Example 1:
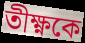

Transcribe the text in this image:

তীক্ষ্ণকে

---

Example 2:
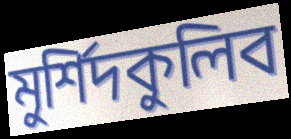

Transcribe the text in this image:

মুর্শিদকুলিব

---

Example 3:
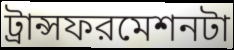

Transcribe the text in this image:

ট্রান্সফরমেশনটা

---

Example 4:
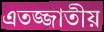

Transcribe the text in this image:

এতজ্জাতীয়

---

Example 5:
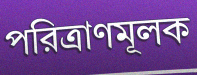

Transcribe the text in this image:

পরিত্রাণমূলক